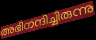
അഭിനന്ദിച്ചിരുന്നു